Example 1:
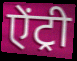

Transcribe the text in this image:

ऐंट्री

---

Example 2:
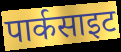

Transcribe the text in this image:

पार्कसाइट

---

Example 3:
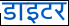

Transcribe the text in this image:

डाइटर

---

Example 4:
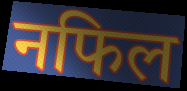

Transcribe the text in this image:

नफिल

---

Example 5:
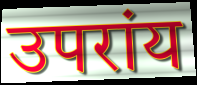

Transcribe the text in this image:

उपरांय